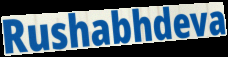
Rushabhdeva